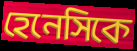
হেনেসিকে